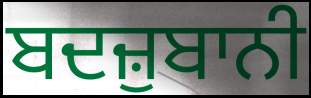
ਬਦਜ਼ੁਬਾਨੀ